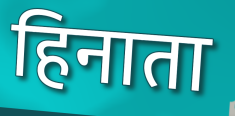
हिनाता